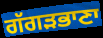
ਗੱਗੜਭਾਣਾ